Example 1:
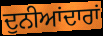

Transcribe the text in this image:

ਦੁਨੀਆਂਦਾਰਾਂ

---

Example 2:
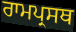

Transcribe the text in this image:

ਰਾਮਪ੍ਰਸਥ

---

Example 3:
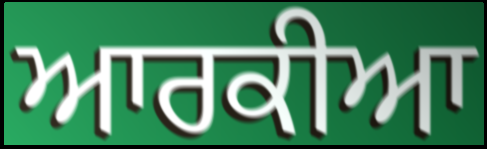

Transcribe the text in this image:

ਆਰਕੀਆ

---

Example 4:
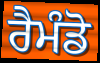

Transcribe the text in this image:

ਰੈਮੰਡੋ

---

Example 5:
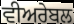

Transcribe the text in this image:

ਵੀਅਰੇਬਲ